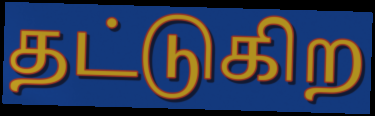
தட்டுகிற